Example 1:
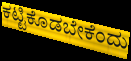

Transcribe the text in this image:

ಕಟ್ಟಿಕೊಡಬೇಕೆಂದು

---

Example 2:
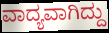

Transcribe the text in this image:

ವಾದ್ಯವಾಗಿದ್ದು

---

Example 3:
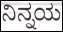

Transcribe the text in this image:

ನಿನ್ನಯ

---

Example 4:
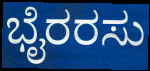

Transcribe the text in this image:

ಭೈರರಸು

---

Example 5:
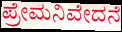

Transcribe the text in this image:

ಪ್ರೇಮನಿವೇದನೆ